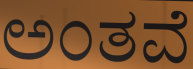
ಅಂತವೆ